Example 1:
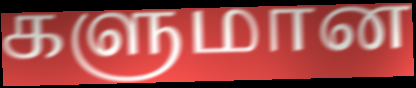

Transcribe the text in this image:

களுமான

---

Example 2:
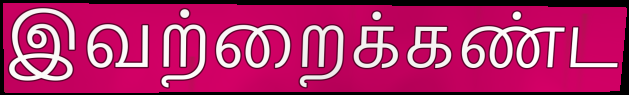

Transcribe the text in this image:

இவற்றைக்கண்ட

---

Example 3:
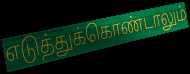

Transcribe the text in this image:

எடுத்துக்கொண்டாலும்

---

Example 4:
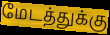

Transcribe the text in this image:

மேடத்துக்கு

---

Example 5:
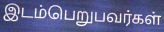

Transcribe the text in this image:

இடம்பெறுபவர்கள்